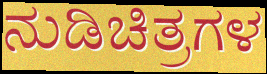
ನುಡಿಚಿತ್ರಗಳ